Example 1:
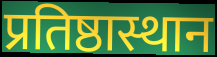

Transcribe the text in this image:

प्रतिष्ठास्थान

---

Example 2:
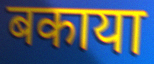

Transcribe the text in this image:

बकाया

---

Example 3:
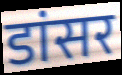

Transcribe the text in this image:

डांसर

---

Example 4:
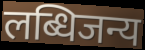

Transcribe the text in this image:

लब्धिजन्य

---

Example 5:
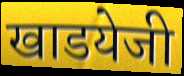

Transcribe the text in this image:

खाडयेजी